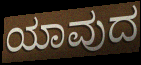
ಯಾವುದ